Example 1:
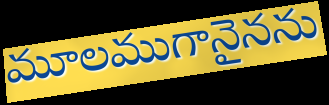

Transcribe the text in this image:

మూలముగానైనను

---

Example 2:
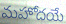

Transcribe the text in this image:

మహోదయే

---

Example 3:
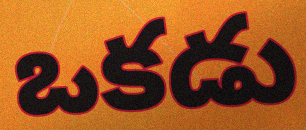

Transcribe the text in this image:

ఒకడు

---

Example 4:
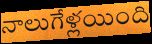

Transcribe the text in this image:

నాలుగేళ్లయింది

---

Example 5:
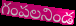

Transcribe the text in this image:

గంపలనిండ